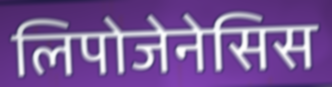
लिपोजेनेसिस